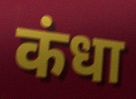
कंधा